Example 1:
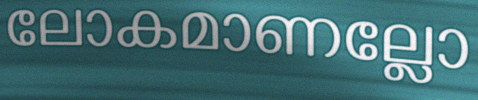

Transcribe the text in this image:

ലോകമാണല്ലോ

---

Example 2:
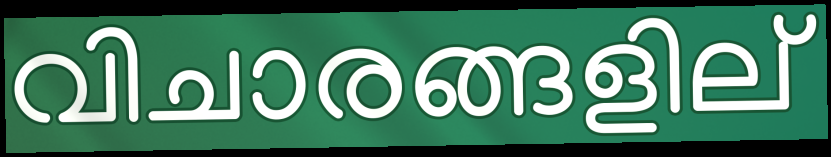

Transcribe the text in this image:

വിചാരങ്ങളില്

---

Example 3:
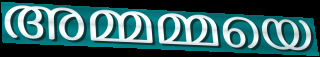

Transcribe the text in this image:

അമ്മമ്മയെ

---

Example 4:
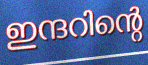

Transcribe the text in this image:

ഇന്ദറിന്റെ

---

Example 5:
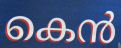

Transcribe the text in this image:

കെൻ